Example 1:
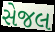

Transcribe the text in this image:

સેજલ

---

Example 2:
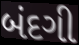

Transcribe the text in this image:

બંદગી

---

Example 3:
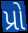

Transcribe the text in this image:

પ્રો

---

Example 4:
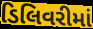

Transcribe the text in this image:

ડિલિવરીમાં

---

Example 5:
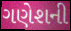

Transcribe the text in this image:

ગણેશની